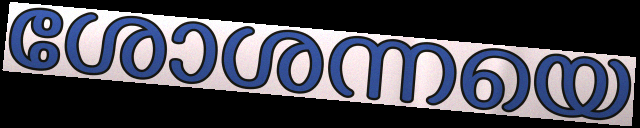
ശോശന്നയെ